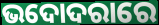
ଭଦୋଦରାରେ